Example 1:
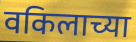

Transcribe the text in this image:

वकिलाच्या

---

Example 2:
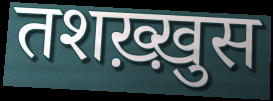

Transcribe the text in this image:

तशख़्ख़ुस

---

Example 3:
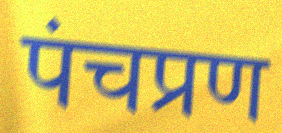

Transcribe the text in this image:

पंचप्रण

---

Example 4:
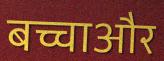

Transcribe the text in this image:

बच्चाऔर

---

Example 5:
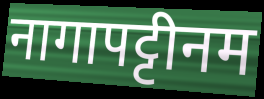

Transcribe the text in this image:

नागापट्टीनम